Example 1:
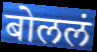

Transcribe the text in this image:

बोललं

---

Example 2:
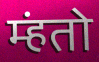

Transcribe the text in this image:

म्हंतो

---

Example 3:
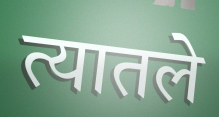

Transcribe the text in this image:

त्यातले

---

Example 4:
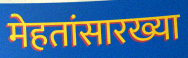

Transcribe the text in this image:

मेहतांसारख्या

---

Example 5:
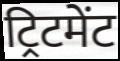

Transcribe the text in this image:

ट्रिटमेंट